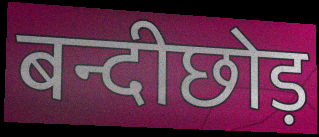
बन्दीछोड़